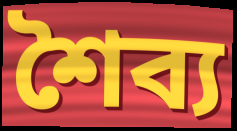
শৈব্য